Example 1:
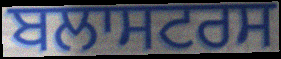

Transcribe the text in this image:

ਬਲਾਸਟਰਸ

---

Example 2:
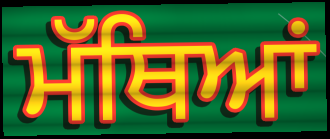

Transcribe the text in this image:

ਮੱਥਿਆਂ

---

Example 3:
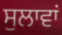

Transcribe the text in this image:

ਸੁਲਾਵਾਂ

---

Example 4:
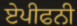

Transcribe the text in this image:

ਏਪੀਫਨੀ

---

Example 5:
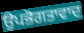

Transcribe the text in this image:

ਉਪਭੋਗਤਾਵਾਦ